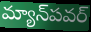
మ్యాన్‌పవర్